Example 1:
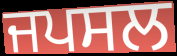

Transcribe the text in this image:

ਜਪਸਲ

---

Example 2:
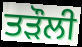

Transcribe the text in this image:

ਤੜੌਲੀ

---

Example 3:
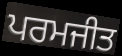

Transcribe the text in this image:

ਪਰਮਜੀਤ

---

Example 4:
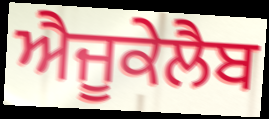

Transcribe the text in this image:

ਐਜੂਕੇਲੈਬ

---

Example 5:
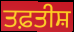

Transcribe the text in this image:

ਤਫ਼ਤੀਸ਼